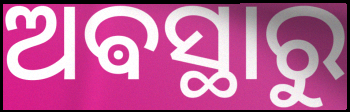
ଅଵସ୍ଥାରୁ